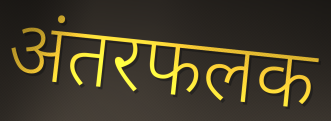
अंतरफलक